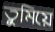
তুমিয়ে